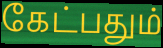
கேட்பதும்